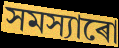
সমস্যাৰো